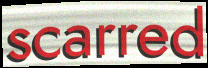
scarred